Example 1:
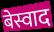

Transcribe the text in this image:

बेस्वाद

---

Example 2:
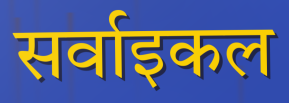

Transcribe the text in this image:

सर्वाइकल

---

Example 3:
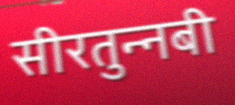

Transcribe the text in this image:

सीरतुन्नबी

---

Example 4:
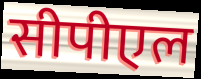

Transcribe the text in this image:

सीपीएल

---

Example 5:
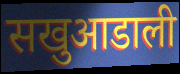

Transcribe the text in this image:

सखुआडाली